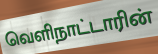
வெளிநாட்டாரின்